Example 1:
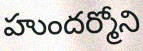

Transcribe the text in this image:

హుందర్మోని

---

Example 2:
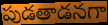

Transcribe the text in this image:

పుడతాడనగా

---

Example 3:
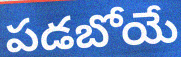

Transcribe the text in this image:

పడబోయే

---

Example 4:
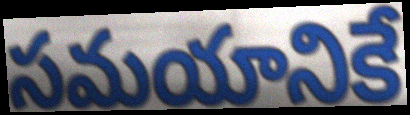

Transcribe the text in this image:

సమయానికే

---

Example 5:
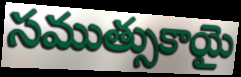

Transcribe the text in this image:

సముత్సుకాయై